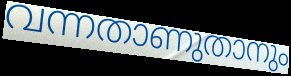
വന്നതാണുതാനും